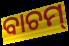
ବାଚମ୍